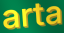
arta